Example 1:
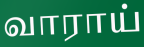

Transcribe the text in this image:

வாராய்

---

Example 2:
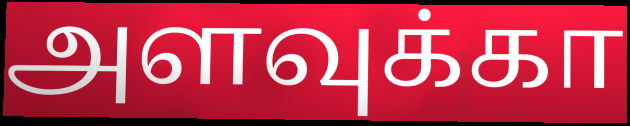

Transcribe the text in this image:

அளவுக்கா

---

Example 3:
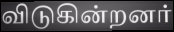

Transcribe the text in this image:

விடுகின்றனர்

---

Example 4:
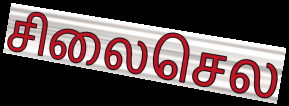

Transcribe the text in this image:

சிலைசெல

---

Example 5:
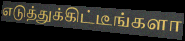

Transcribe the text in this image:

எடுத்துக்கிட்டீங்களா